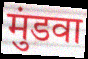
मुंडवा